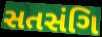
સતસંગિ